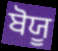
ਬੋਯੂ